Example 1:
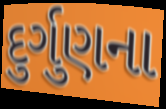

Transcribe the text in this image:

દુર્ગુણના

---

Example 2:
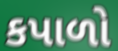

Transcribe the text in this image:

કપાળો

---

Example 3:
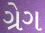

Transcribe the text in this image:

ગ્રેગ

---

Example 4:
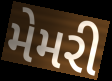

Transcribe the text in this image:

મેમરી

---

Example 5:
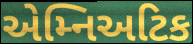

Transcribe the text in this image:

એમ્નિઅટિક